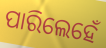
ପାରିଲେହେଁ